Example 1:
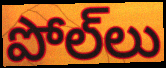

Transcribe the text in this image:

పోల్‌లు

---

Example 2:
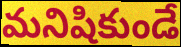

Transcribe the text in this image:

మనిషికుండే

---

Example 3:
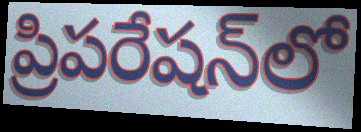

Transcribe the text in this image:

ప్రిపరేషన్‌లో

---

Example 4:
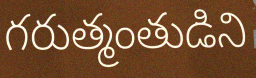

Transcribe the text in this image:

గరుత్మంతుడిని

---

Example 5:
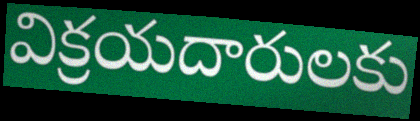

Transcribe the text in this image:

విక్రయదారులకు